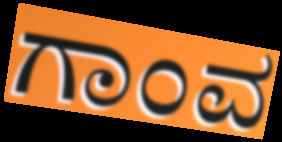
ಗಾಂವ